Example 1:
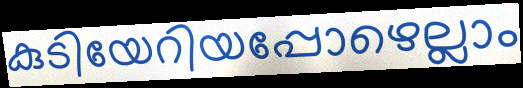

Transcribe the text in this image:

കുടിയേറിയപ്പോഴെല്ലാം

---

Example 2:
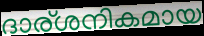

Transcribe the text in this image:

ദാര്ശനികമായ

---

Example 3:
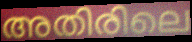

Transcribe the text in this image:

അതിരിലെ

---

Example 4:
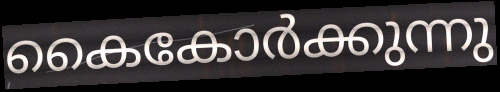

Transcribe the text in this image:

കൈകോർക്കുന്നു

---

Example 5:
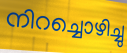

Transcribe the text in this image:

നിറച്ചൊഴിച്ചു